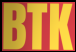
BTK